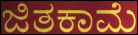
ಜಿತಕಾಮೆ